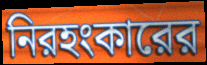
নিরহংকারের